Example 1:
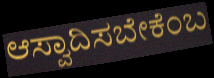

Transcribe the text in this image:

ಆಸ್ವಾದಿಸಬೇಕೆಂಬ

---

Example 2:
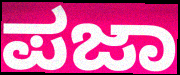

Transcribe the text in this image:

ಪಜಾ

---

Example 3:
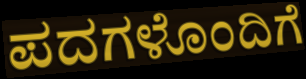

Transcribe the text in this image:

ಪದಗಳೊಂದಿಗೆ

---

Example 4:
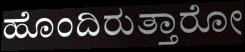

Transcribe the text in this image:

ಹೊಂದಿರುತ್ತಾರೋ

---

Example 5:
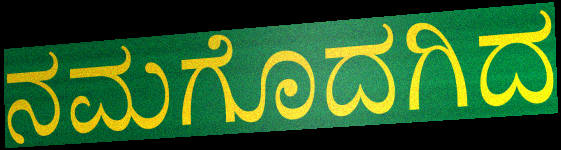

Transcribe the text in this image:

ನಮಗೊದಗಿದ